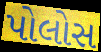
પોલોસ